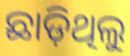
ଛାଡ଼ିଥିଲୁ